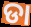
ଡା